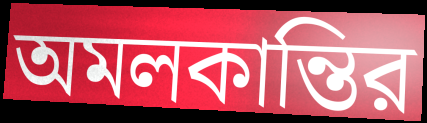
অমলকান্তির